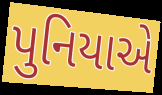
પુનિયાએ